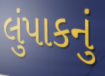
લુંપાકનું